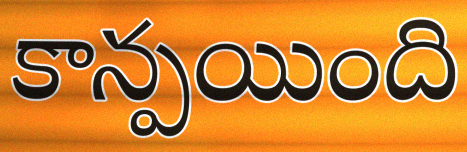
కాన్పయింది